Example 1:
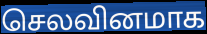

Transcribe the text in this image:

செலவினமாக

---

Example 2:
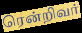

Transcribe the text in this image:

ரென்றிவர்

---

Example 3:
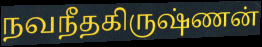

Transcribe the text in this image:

நவநீதகிருஷ்ணன்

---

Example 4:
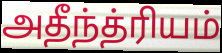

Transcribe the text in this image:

அதீந்த்ரியம்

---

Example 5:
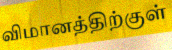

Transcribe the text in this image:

விமானத்திற்குள்